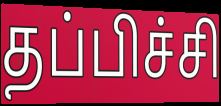
தப்பிச்சி